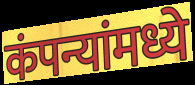
कंपन्यांमध्ये